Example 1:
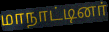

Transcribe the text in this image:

மாநாட்டினர்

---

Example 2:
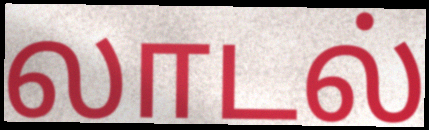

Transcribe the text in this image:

லாடல்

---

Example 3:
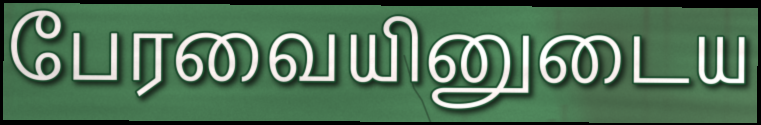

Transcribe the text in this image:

பேரவையினுடைய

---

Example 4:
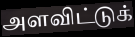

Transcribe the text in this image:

அளவிட்டுக்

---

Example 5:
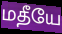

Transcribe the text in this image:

மதீயே